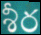
శీర